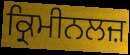
ਕ੍ਰਿਮੀਨਲਜ਼